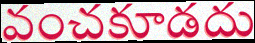
వంచకూడదు